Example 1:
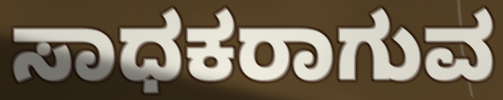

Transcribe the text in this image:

ಸಾಧಕರಾಗುವ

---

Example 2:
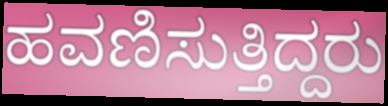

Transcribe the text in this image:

ಹವಣಿಸುತ್ತಿದ್ದರು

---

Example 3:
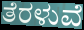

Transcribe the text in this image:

ತೆರಳುವೆ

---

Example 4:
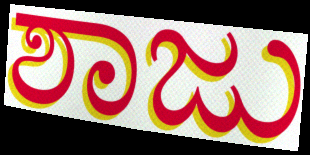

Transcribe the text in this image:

ಶಾಜು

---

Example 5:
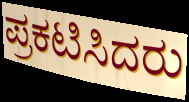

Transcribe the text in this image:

ಪ್ರಕಟಿಸಿದರು